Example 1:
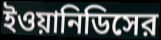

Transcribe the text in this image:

ইওয়ানিডিসের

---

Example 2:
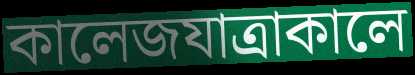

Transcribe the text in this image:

কালেজযাত্রাকালে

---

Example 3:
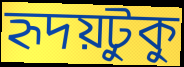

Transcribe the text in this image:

হৃদয়টুকু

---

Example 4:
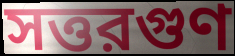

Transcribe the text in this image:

সত্তরগুণ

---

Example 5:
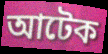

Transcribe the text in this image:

আটেক